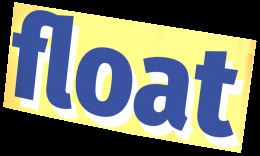
float